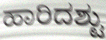
ಹಾರಿದಶ್ಟು